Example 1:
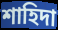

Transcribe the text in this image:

শাহিদা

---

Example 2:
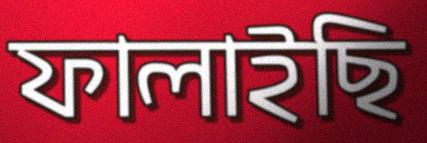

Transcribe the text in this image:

ফালাইছি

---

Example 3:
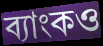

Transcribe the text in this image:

ব্যাংকও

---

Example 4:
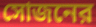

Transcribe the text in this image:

সোজনের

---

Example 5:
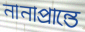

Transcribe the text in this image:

নানাপ্রান্তে